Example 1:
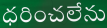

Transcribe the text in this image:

ధరించలేను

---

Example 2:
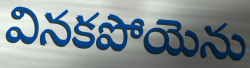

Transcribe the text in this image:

వినకపోయెను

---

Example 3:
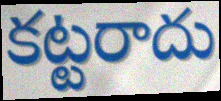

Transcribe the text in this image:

కట్టరాదు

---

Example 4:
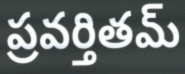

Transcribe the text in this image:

ప్రవర్తితమ్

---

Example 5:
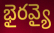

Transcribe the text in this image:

భైరవ్యై